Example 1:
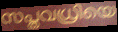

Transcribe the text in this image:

സപ്തവധ്രിയെ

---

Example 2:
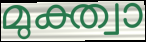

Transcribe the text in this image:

മുക്ത്വാ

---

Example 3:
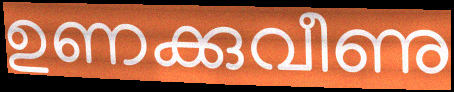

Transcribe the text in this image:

ഉണക്കുവീണു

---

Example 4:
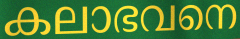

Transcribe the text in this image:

കലാഭവനെ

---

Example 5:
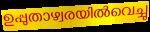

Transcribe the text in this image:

ഉപ്പുതാഴ്വരയിൽവെച്ചു